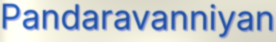
Pandaravanniyan